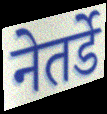
नेतर्डे